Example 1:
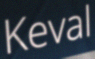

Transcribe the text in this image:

Keval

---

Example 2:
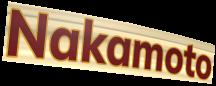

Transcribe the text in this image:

Nakamoto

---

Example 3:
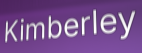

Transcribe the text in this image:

Kimberley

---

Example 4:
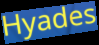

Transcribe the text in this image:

Hyades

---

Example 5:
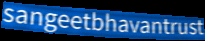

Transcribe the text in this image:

sangeetbhavantrust